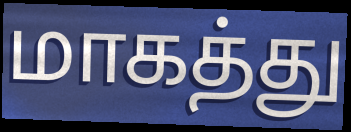
மாகத்து